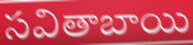
సవితాబాయి